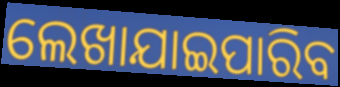
ଲେଖାଯାଇପାରିବ